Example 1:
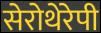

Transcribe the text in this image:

सेरोथेरेपी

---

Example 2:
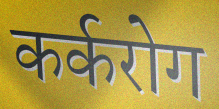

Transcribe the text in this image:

कर्करोग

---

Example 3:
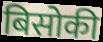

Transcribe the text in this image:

बिसोकी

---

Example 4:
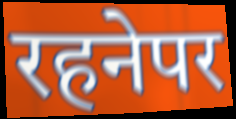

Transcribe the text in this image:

रहनेपर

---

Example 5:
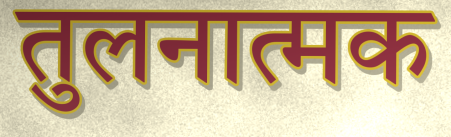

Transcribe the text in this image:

तुलनात्मक